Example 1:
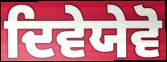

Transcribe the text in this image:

ਦਿਵੇਯੇਵੋ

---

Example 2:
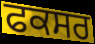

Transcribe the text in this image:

ਫਕਸਰ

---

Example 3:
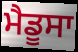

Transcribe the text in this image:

ਮੈਡੂਸਾ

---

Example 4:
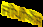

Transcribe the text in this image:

ਜੀਪੀਐੱਸ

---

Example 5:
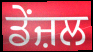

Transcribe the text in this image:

ਡੇਂਜ਼ਲ